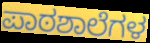
ಪಾಠಶಾಲೆಗಳ